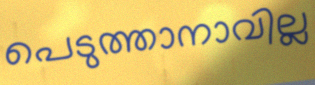
പെടുത്താനാവില്ല